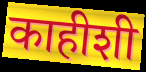
काहीशी